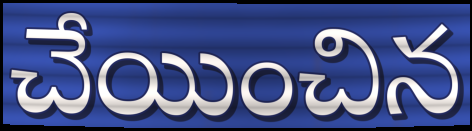
చేయించిన